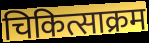
चिकित्साक्रम